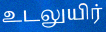
உடலுயிர்